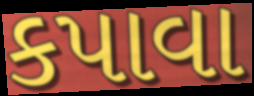
કપાવા